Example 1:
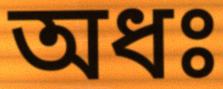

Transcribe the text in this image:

অধঃ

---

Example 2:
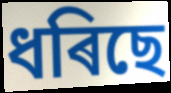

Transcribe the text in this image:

ধৰিছে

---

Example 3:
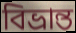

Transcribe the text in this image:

বিভ্ৰান্ত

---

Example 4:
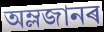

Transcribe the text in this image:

অম্লজানৰ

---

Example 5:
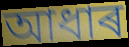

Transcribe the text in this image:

আধাৰ